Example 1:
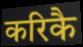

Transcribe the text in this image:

करिकै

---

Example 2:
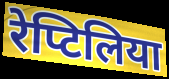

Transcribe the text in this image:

रेप्टिलिया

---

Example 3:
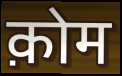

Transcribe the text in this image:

क़ोम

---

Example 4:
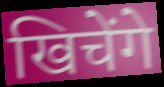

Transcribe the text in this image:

खिचेंगे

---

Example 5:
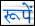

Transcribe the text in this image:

रूपें